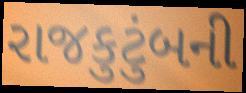
રાજકુટુંબની